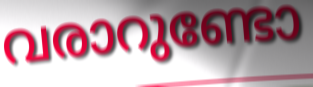
വരാറുണ്ടോ